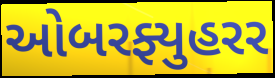
ઓબરફ્યુહરર